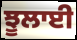
ਝੂਲਾਈ